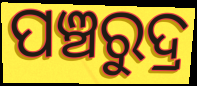
ପଞ୍ଚରୁଦ୍ର